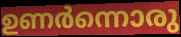
ഉണർന്നൊരു